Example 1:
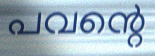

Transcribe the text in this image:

പവന്റെ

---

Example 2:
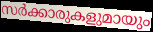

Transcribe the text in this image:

സർക്കാരുകളുമായും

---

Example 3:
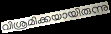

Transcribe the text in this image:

വിശ്രമിക്കയായിരുന്നു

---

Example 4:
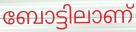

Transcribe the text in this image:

ബോട്ടിലാണ്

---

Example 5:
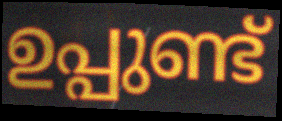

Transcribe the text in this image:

ഉപ്പുണ്ട്